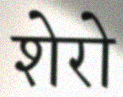
शेरो